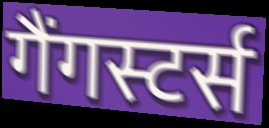
गैंगस्टर्स